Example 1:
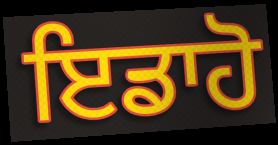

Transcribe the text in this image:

ਇਡਾਹੋ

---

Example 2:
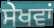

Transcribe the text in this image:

ਸੇਖਵਾਂ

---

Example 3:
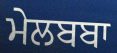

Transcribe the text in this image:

ਮੇਲਬਬਾ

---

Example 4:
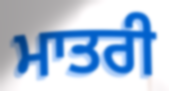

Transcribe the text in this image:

ਮਾਤਰੀ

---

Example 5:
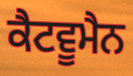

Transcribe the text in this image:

ਕੈਟਵੂਮੈਨ